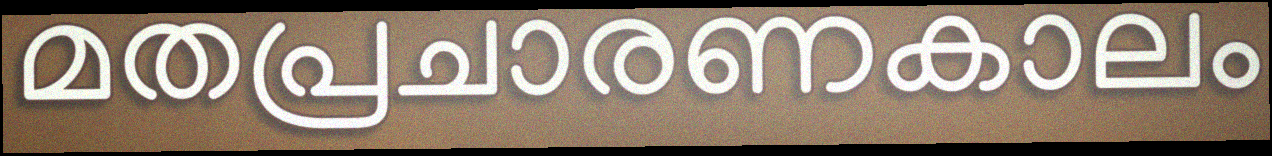
മതപ്രചാരണകാലം